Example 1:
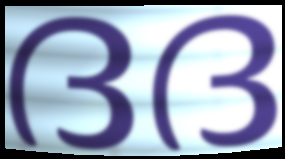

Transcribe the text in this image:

ദദ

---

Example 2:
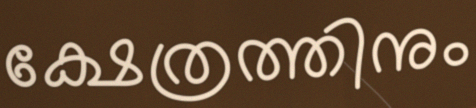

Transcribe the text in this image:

ക്ഷേത്രത്തിനും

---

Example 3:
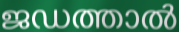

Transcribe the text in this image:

ജഡത്താൽ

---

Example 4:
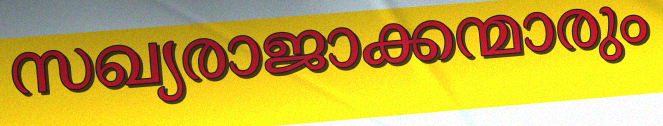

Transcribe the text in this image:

സഖ്യരാജാക്കന്മാരും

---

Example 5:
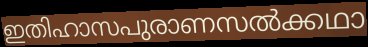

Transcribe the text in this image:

ഇതിഹാസപുരാണസൽക്കഥാ